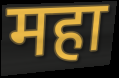
महा